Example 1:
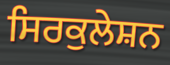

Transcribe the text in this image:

ਸਿਰਕੁਲੇਸ਼ਨ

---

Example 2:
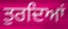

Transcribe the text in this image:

ਤੁਰਦਿਆਂ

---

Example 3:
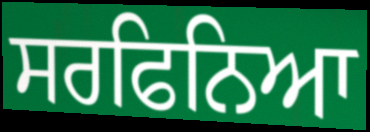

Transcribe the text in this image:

ਸਰਫਿਨਿਆ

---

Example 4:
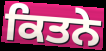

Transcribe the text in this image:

ਕਿਤਨੇ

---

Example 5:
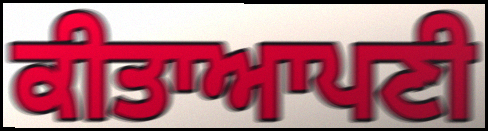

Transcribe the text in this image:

ਕੀਤਾਆਪਣੀ